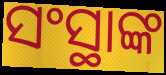
ସଂସ୍ଥାଙ୍କ